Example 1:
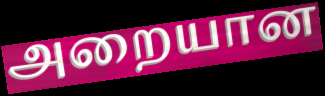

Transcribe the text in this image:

அறையான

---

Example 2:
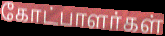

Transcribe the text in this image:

கோட்பாளர்கள்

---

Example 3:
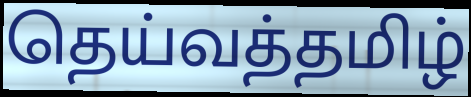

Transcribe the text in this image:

தெய்வத்தமிழ்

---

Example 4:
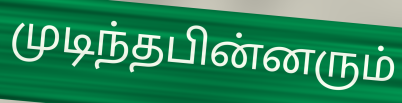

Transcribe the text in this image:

முடிந்தபின்னரும்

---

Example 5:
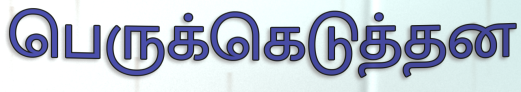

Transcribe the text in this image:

பெருக்கெடுத்தன